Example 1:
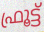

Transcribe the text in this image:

ഫ്രൂട്ട്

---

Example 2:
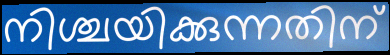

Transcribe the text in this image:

നിശ്ചയിക്കുന്നതിന്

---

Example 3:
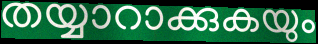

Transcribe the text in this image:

തയ്യാറാക്കുകയും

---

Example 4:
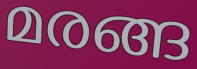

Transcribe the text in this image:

മരങ്ങ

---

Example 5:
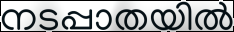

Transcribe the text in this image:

നടപ്പാതയിൽ